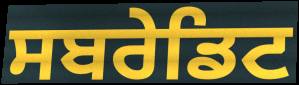
ਸਬਰੇਡਿਟ